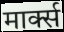
मार्क्स